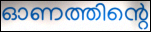
ഓണത്തിന്റെ